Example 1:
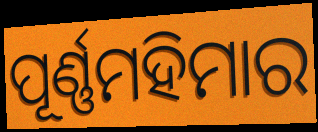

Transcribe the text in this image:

ପୂର୍ଣ୍ଣମହିମାର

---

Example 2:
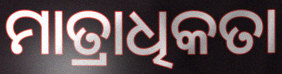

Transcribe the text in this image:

ମାତ୍ରାଧିକତା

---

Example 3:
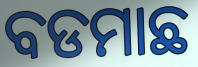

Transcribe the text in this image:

ବଡମାଛ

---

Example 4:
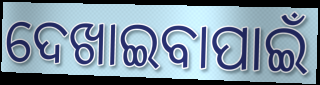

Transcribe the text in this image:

ଦେଖାଇବାପାଇଁ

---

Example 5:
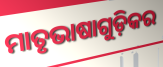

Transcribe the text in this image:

ମାତୃଭାଷାଗୁଡ଼ିକର